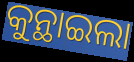
କୁନ୍ଥାଇଲା